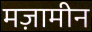
मज़ामीन